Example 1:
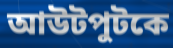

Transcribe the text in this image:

আউটপুটকে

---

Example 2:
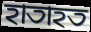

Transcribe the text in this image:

হাতাহত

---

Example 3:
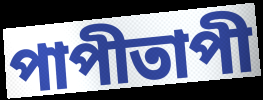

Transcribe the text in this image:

পাপীতাপী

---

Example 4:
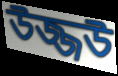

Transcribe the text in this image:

উজ্জউ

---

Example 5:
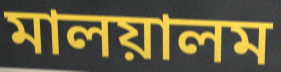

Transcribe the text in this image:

মালয়ালম